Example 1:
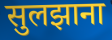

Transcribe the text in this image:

सुलझाना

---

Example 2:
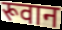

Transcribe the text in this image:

रूवान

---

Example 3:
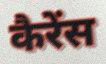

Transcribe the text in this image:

कैरेंस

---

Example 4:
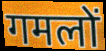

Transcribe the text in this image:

गमलों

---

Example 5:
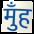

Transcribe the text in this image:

मुँह